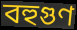
বহুগুণ